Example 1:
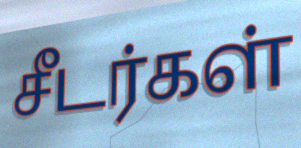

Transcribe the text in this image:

சீடர்கள்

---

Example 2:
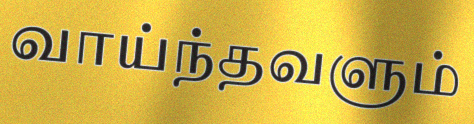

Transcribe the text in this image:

வாய்ந்தவளும்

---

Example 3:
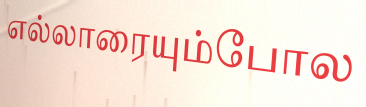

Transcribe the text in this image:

எல்லாரையும்போல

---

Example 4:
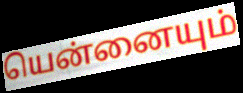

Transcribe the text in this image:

யென்னையும்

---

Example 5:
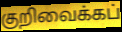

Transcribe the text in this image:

குறிவைக்கப்